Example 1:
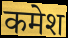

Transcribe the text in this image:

कमेश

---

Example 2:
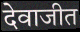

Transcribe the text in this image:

देवाजीत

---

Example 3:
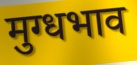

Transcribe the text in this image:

मुग्धभाव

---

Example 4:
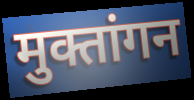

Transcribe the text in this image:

मुक्तांगन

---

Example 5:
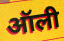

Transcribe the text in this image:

ऑली